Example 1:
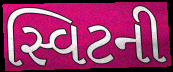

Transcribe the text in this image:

સ્વિટની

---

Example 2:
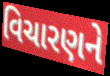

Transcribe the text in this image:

વિચારણને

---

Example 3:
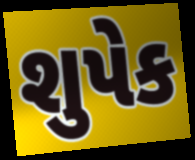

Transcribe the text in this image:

શુપેક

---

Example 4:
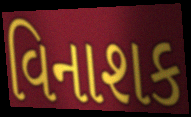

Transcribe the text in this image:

વિનાશક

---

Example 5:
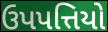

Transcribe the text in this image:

ઉપપત્તિયો